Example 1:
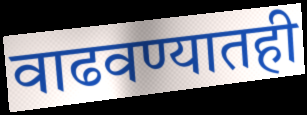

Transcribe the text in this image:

वाढवण्यातही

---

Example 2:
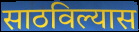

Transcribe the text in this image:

साठविल्यास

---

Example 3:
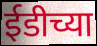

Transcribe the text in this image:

ईडीच्या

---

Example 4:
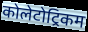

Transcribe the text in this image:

कोलेटोट्रिकम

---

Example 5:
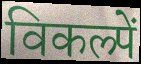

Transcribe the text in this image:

विकल्पें